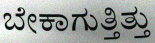
ಬೇಕಾಗುತ್ತಿತ್ತು